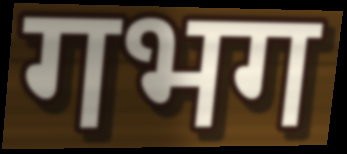
गभग